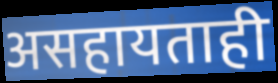
असहायताही